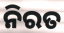
ନିରତ